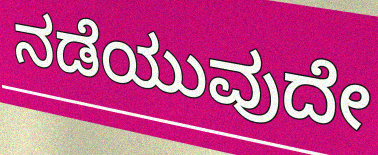
ನಡೆಯುವುದೇ